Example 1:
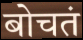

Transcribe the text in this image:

बोचतं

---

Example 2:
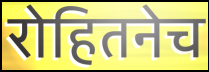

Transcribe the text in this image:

रोहितनेच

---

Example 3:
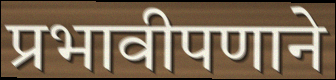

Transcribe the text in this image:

प्रभावीपणाने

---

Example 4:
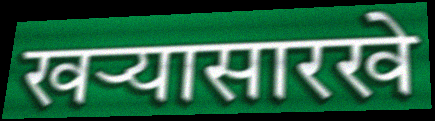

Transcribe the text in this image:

खऱ्यासारखे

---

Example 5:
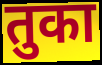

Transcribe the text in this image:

तुका